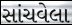
સાંચવેલા